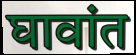
घावांत